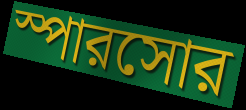
স্পারসোর